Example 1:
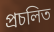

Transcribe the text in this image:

প্রচলিত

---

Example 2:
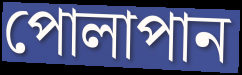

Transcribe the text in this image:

পোলাপান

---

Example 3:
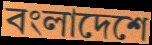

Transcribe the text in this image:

বংলাদেশে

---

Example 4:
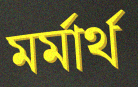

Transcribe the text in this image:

মর্মার্থ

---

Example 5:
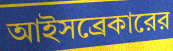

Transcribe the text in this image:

আইসব্রেকারের